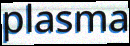
plasma